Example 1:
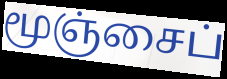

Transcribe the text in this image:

மூஞ்சைப்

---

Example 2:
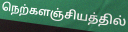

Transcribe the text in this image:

நெற்களஞ்சியத்தில்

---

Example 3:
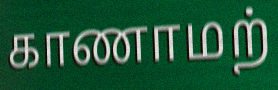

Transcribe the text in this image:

காணாமற்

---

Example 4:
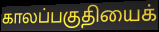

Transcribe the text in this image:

காலப்பகுதியைக்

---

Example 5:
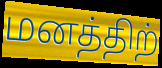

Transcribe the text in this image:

மனத்திற்